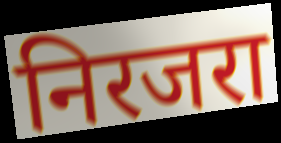
निरजरा